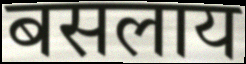
बसलाय